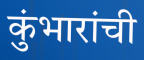
कुंभारांची